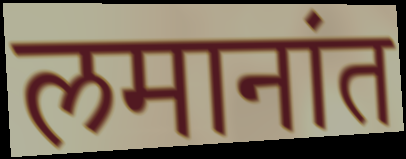
लमानांत